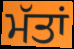
ਮੱਤਾਂ